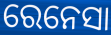
ରେନେସା